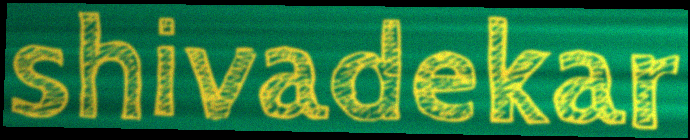
shivadekar